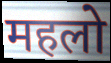
महलो